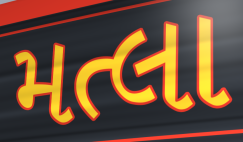
મત્લા